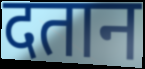
दतान